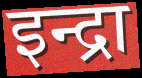
इन्द्रा